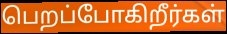
பெறப்போகிறீர்கள்